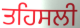
ਤਹਿਸਲੀ